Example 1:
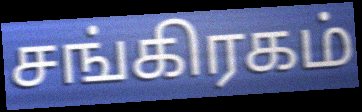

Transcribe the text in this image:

சங்கிரகம்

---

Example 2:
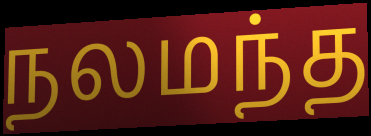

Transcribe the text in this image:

நலமந்த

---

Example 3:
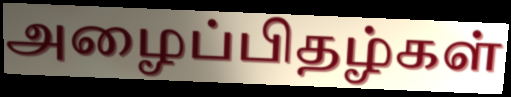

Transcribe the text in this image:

அழைப்பிதழ்கள்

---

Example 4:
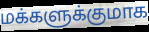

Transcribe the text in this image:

மக்களுக்குமாக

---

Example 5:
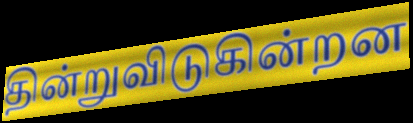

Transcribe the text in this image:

தின்றுவிடுகின்றன